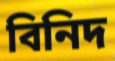
বিনিদ